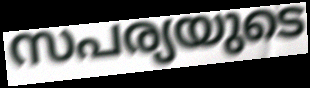
സപര്യയുടെ